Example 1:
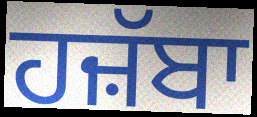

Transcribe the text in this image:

ਹਜ਼ੱਬਾ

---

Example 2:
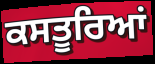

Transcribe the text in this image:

ਕਸਤੂਰਿਆਂ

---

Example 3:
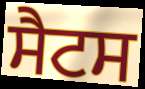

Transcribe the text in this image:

ਸੈਟਸ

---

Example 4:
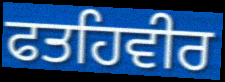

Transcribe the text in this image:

ਫਤਹਿਵੀਰ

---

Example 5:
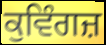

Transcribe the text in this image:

ਕੁਵਿੰਗਜ਼